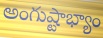
అంగుష్టాభ్యాం